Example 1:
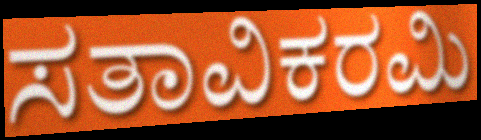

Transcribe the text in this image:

ಸತಾವಿಕರಮಿ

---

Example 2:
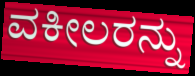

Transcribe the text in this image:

ವಕೀಲರನ್ನು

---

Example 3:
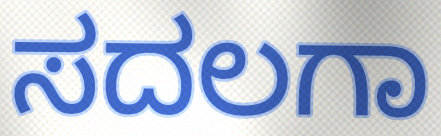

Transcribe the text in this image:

ಸದಲಗಾ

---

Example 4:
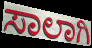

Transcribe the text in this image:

ಸಾಲಾಗಿ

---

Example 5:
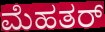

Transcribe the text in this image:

ಮೆಹತರ್